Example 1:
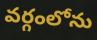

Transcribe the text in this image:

వర్గంలోను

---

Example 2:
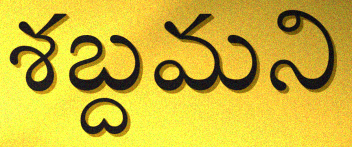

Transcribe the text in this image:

శబ్దమని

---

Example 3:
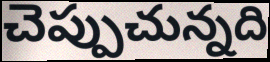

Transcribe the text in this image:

చెప్పుచున్నది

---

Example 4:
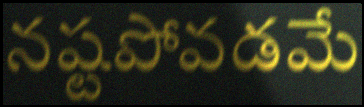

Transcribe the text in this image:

నష్టపోవడమే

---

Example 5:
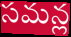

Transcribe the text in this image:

సమన్ల